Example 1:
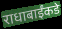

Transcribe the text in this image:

राधाबाईंकडे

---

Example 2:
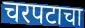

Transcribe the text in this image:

चरपटाचा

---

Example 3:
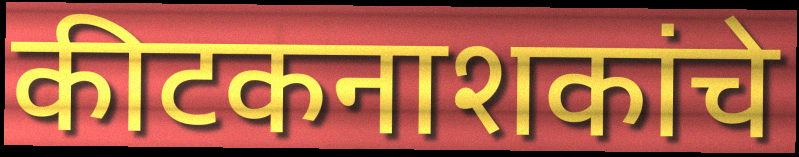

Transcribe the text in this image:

कीटकनाशकांचे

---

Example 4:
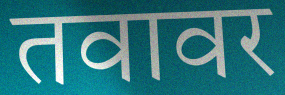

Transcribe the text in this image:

तवावर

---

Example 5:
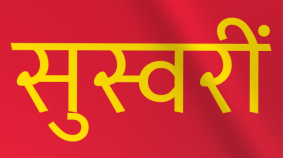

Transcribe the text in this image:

सुस्वरीं